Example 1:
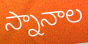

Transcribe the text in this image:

స్నానాల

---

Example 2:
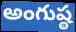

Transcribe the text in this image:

అంగుష్ఠ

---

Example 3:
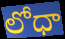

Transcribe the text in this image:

లోధా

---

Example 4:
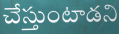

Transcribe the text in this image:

చేస్తుంటాడని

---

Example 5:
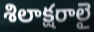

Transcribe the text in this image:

శిలాక్షరాలై